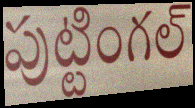
పుట్టింగల్